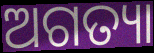
ଅଗତ୍ୟା